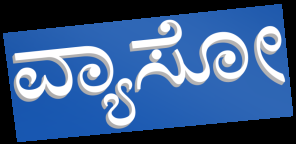
ವ್ಯಾಸೋ